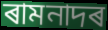
ৰামনাদৰ